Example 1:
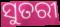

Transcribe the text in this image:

ସୁତରୀ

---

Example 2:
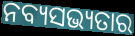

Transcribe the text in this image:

ନବ୍ୟସଭ୍ୟତାର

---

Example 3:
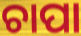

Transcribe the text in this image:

ଚାପା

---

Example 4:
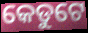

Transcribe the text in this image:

କେଡୁଟେ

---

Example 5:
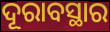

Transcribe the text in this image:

ଦୂରାବସ୍ଥାର